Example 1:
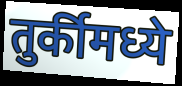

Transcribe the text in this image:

तुर्कीमध्ये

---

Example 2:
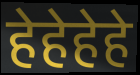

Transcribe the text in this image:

हेहेहेहे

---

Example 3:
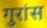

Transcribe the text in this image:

गुरांस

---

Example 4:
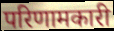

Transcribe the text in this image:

परिणामकारी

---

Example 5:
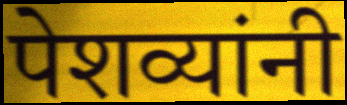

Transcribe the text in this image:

पेशव्यांनी